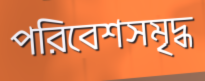
পরিবেশসমৃদ্ধ